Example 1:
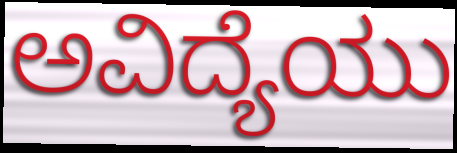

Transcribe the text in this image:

ಅವಿದ್ಯೆಯು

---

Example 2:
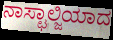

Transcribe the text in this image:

ನಾಸ್ಟಾಲ್ಜಿಯಾದ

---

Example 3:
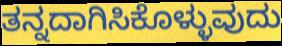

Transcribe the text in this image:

ತನ್ನದಾಗಿಸಿಕೊಳ್ಳುವುದು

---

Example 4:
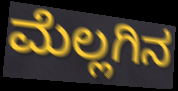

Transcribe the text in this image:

ಮೆಲ್ಲಗಿನ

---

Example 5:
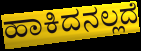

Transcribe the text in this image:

ಹಾಕಿದನಲ್ಲದೆ